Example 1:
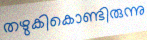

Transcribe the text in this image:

തഴുകികൊണ്ടിരുന്നു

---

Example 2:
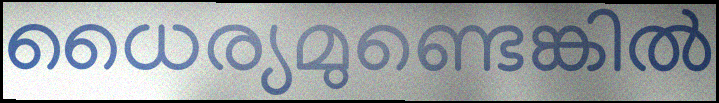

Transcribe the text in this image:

ധൈര്യമുണ്ടെങ്കിൽ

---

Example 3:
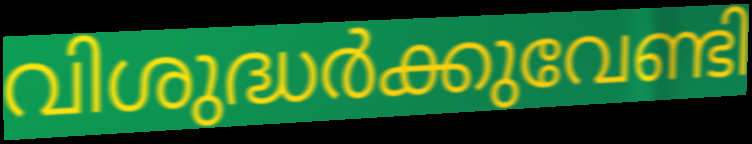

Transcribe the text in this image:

വിശുദ്ധർക്കുവേണ്ടി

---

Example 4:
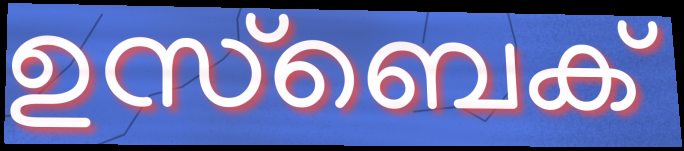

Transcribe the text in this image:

ഉസ്ബെക്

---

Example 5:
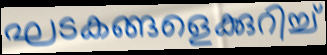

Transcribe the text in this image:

ഘടകങ്ങളെക്കുറിച്ച്